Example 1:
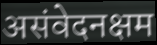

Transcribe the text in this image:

असंवेदनक्षम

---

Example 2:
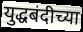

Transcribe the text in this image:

युद्धबंदीच्या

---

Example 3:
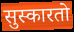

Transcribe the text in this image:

सुस्कारतो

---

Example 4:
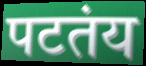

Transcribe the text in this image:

पटतंय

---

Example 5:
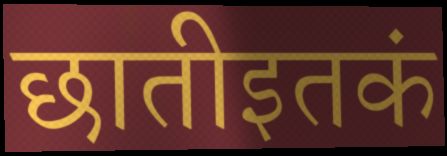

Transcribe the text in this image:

छातीइतकं